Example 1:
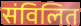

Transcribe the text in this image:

संविलित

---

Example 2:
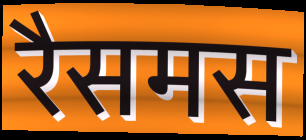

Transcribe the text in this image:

रैसमस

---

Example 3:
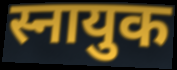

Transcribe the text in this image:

स्नायुक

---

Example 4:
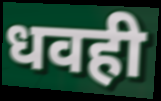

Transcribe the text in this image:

धवही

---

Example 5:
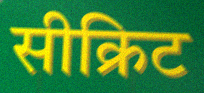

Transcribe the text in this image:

सीक्रिट